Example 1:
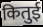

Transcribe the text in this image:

कितुई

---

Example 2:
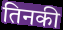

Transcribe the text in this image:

तिनकी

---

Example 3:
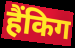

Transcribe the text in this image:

हैंकिग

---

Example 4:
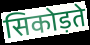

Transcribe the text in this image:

सिकोड़ते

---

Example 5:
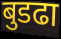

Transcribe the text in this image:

बुडढा